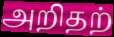
அறிதற்